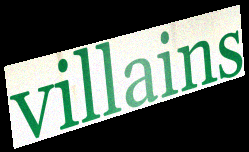
villains